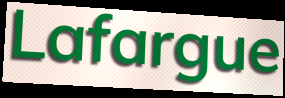
Lafargue